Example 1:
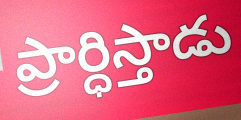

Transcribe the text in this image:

ప్రార్ధిస్తాడు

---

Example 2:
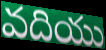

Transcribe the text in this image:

వదియు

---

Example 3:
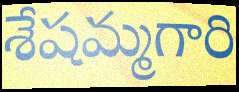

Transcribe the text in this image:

శేషమ్మగారి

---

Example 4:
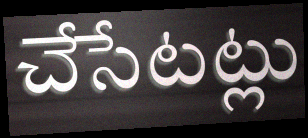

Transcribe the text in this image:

చేసేటట్లు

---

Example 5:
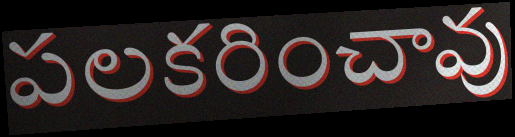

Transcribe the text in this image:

పలకరించావు